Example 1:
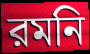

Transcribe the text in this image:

রমনি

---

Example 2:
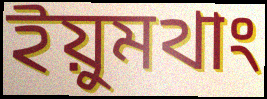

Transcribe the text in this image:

ইয়ুমথাং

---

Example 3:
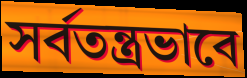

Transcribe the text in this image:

সর্বতন্ত্রভাবে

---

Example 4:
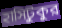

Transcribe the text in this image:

হাসিটুকুর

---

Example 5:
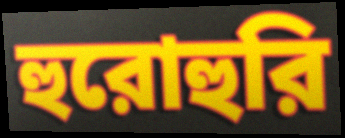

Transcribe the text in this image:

হুরোহুরি